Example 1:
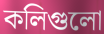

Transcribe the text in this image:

কলিগুলো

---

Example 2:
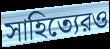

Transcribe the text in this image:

সাহিত্যেরও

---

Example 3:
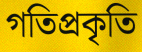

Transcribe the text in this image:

গতিপ্রকৃতি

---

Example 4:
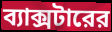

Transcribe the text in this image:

ব্যাক্সটারের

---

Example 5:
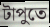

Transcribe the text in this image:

টাপুতে